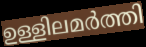
ഉള്ളിലമർത്തി